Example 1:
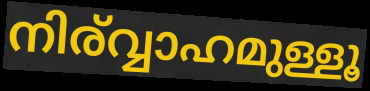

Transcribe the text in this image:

നിര്വ്വാഹമുള്ളൂ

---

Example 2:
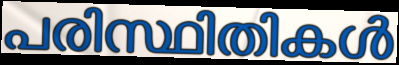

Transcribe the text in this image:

പരിസ്ഥിതികൾ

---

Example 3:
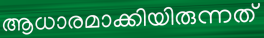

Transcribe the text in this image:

ആധാരമാക്കിയിരുന്നത്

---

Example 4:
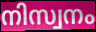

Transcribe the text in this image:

നിസ്വനം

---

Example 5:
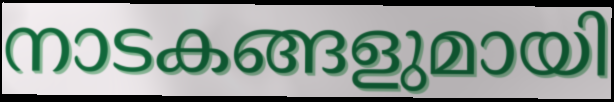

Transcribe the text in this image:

നാടകങ്ങളുമായി